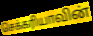
செக்கரியாவின்